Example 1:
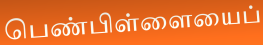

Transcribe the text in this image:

பெண்பிள்ளையைப்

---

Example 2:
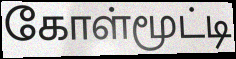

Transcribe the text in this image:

கோள்மூட்டி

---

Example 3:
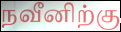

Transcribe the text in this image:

நவீனிற்கு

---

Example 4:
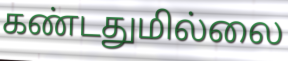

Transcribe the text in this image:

கண்டதுமில்லை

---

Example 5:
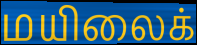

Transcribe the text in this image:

மயிலைக்